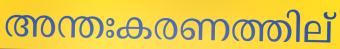
അന്തഃകരണത്തില്